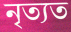
নৃত্যত